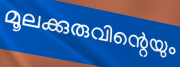
മൂലക്കുരുവിന്റെയും